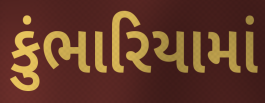
કુંભારિયામાં